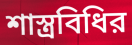
শাস্ত্রবিধির